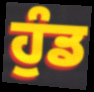
ਹੁੰਡ